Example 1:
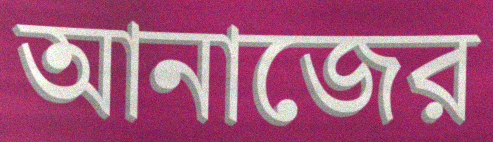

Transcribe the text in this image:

আনাজের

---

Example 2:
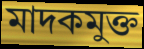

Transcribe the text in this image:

মাদকমুক্ত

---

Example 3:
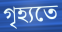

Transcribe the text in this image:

গৃহ্যতে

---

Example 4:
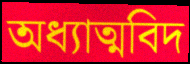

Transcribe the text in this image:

অধ্যাত্মবিদ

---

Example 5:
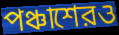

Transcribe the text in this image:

পঞ্চাশেরও